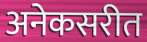
अनेकसरीत